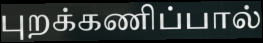
புறக்கணிப்பால்